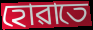
হোৱাতে